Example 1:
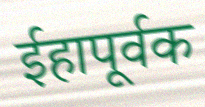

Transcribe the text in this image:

ईहापूर्वक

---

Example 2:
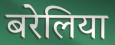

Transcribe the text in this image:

बरेलिया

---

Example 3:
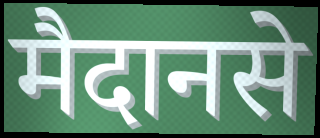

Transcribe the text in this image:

मैदानसे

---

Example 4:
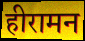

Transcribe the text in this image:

हीरामन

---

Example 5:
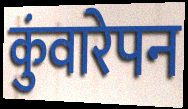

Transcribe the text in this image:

कुंवारेपन